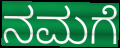
ನಮಗೆ